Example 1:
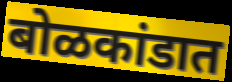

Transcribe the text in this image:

बोळकांडात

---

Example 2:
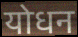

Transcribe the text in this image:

योधन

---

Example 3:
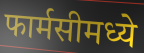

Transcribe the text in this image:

फार्मसीमध्ये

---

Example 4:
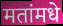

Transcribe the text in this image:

मतांमधे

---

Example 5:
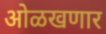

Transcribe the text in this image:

ओळखणार